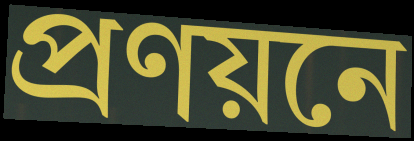
প্রণয়নে